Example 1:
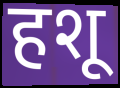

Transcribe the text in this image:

हशू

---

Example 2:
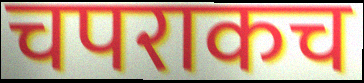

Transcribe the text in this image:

चपराकच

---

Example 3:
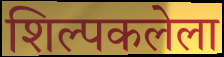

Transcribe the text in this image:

शिल्पकलेला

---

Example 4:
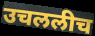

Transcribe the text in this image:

उचललीच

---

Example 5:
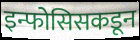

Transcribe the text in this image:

इन्फोसिसकडून